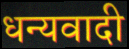
धन्यवादी